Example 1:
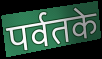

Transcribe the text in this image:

पर्वतके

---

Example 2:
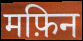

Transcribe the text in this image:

मफ़िन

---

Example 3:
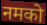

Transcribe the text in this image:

नमको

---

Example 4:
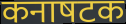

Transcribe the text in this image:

कनाषटक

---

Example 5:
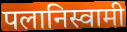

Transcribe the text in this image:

पलानिस्वामी